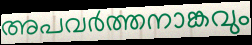
അപവർത്തനാങ്കവും